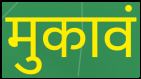
मुकावं